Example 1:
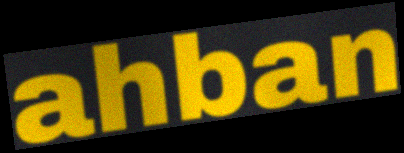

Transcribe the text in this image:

ahban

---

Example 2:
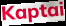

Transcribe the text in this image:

Kaptai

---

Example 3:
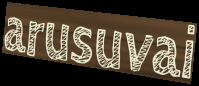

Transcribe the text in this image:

arusuvai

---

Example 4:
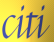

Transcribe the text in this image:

citi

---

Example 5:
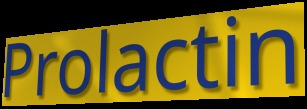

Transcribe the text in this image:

Prolactin